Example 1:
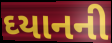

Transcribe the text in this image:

ઘ્યાનની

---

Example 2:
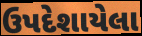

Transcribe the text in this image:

ઉપદેશાયેલા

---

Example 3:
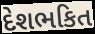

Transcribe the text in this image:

દેશભકિત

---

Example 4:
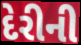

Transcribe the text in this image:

દેરીની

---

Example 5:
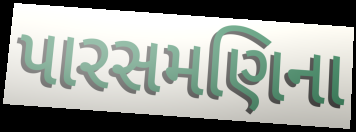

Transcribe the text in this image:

પારસમણિના